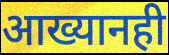
आख्यानही